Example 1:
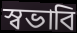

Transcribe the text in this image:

স্বভাবি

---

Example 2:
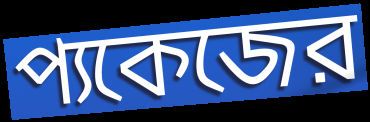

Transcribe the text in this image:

প্যকেজের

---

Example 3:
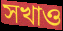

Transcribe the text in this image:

সখাও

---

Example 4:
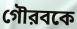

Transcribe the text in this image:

গৌরবকে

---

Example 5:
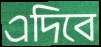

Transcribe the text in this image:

এদিবে